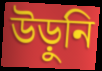
উড়ুনি